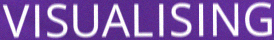
VISUALISING